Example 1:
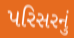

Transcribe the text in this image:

પરિસરનું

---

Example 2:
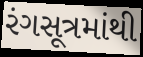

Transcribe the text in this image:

રંગસૂત્રમાંથી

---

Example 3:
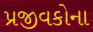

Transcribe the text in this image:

પ્રજીવકોના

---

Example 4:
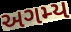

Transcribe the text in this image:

અગમ્ય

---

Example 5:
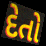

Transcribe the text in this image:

દેતો